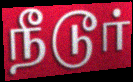
நீடூர்